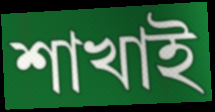
শাখাই